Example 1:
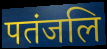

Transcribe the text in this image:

पतंजलि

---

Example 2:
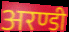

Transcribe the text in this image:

अरण्डी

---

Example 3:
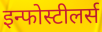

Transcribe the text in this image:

इन्फोस्टीलर्स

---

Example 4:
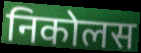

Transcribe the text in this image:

निकोलस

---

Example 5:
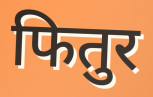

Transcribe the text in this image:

फितुर